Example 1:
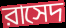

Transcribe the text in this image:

রাসেদ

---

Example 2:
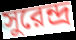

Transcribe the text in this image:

সুরেন্দ্র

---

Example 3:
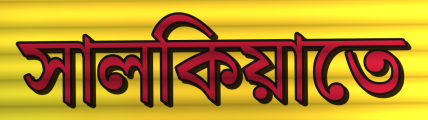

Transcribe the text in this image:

সালকিয়াতে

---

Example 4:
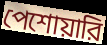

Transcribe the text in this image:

পেশোয়ারি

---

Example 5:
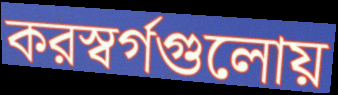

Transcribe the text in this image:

করস্বর্গগুলোয়